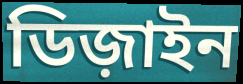
ডিজ়াইন